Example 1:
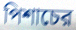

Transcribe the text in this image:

পিশাচের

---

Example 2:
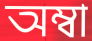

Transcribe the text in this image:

অম্বা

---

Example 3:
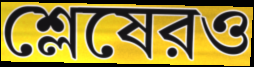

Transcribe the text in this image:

শ্লেষেরও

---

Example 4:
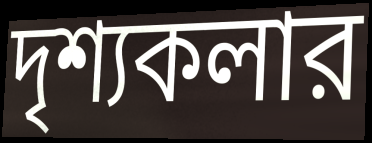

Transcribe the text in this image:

দৃশ্যকলার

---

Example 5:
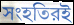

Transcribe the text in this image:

সংহতিরই